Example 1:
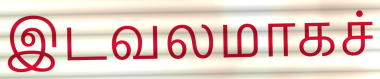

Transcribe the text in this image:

இடவலமாகச்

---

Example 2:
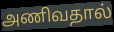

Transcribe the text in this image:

அணிவதால்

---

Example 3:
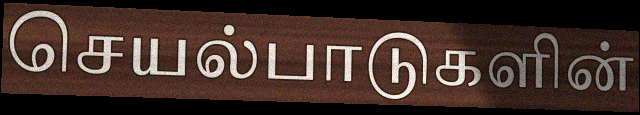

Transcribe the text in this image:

செயல்பாடுகளின்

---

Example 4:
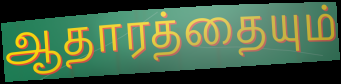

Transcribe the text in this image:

ஆதாரத்தையும்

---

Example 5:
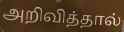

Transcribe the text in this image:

அறிவித்தால்